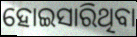
ହୋଇସାରିଥିବା